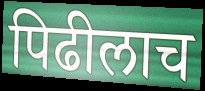
पिढीलाच